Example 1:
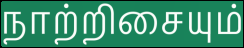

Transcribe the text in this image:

நாற்றிசையும்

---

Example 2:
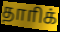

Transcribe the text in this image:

தாரிக்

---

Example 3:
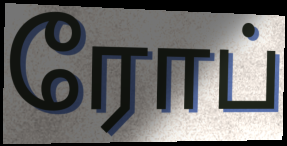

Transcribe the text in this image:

ரோப்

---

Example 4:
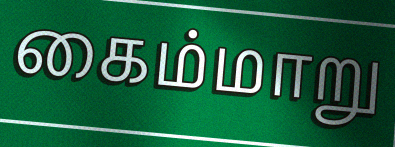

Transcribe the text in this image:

கைம்மாறு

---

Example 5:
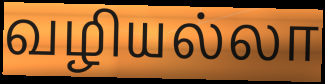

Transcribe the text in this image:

வழியல்லா